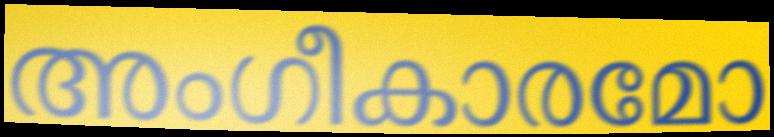
അംഗീകാരമോ